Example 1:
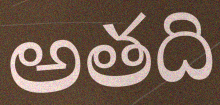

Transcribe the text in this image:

అతది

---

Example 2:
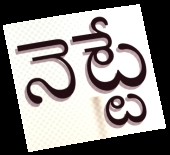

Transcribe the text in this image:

నెట్టే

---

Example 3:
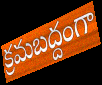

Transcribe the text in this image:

క్రమబద్దంగా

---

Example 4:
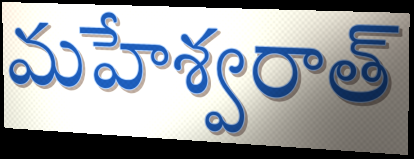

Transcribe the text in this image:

మహేశ్వరాత్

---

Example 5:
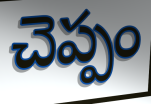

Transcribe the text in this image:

చెప్పం